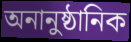
অনানুষ্ঠানিক